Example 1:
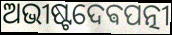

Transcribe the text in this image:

ଅଭୀଷ୍ଟଦେଵପତ୍ନୀ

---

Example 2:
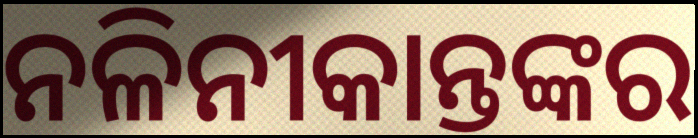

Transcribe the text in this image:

ନଳିନୀକାନ୍ତଙ୍କର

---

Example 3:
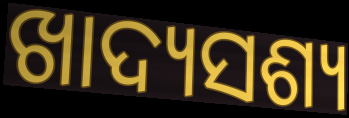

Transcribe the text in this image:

ଖାଦ୍ୟସଶ୍ୟ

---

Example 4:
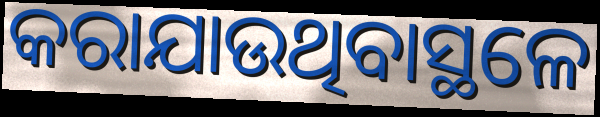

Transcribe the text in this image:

କରାଯାଉଥିବାସ୍ଥଳେ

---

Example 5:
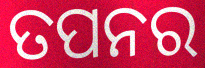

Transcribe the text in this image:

ତପନର